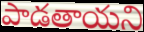
పాడతాయని